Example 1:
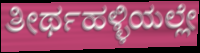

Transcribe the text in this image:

ತೀರ್ಥಹಳ್ಳಿಯಲ್ಲೇ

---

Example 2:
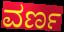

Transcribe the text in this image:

ವರ್ಣ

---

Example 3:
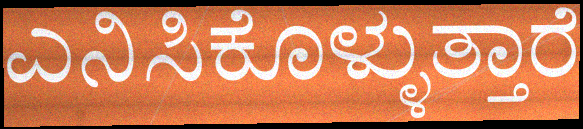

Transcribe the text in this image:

ಎನಿಸಿಕೊಳ್ಳುತ್ತಾರೆ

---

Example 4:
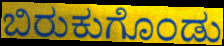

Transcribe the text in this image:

ಬಿರುಕುಗೊಂಡು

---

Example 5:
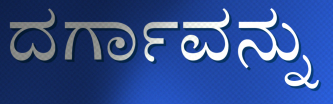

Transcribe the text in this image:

ದರ್ಗಾವನ್ನು